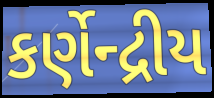
કર્ણેન્દ્રીય